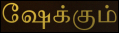
ஷேக்கும்